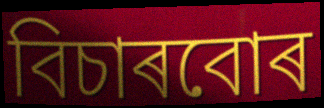
বিচাৰবোৰ